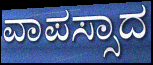
ವಾಪಸ್ಸಾದ